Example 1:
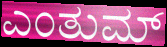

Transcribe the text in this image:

ಎಂತುಮ್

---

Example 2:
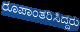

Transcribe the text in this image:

ರೂಪಾಂತರಿಸಿದ್ದರು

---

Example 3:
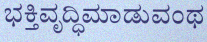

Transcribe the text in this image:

ಭಕ್ತಿವೃದ್ಧಿಮಾಡುವಂಥ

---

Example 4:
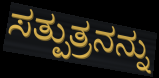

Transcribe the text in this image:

ಸತ್ಪುತ್ರನನ್ನು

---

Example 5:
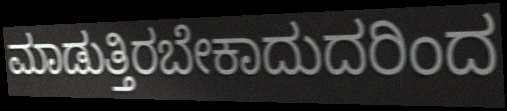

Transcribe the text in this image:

ಮಾಡುತ್ತಿರಬೇಕಾದುದರಿಂದ